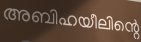
അബിഹയീലിന്റെ